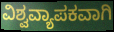
ವಿಶ್ವವ್ಯಾಪಕವಾಗಿ